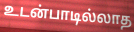
உடன்பாடில்லாத